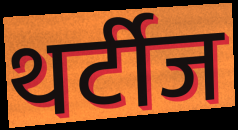
थर्टीज